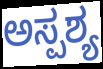
ಅಸ್ಪಶ್ಯ